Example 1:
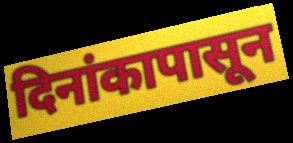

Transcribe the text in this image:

दिनांकापासून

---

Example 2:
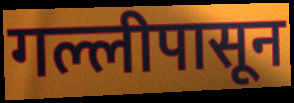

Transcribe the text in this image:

गल्लीपासून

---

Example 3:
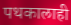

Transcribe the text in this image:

पथकालाही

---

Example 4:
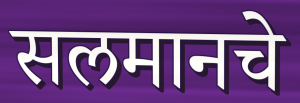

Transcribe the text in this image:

सलमानचे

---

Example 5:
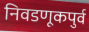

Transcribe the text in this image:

निवडणूकपुर्व